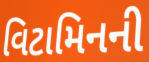
વિટામિનની